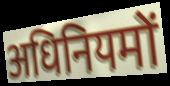
अधिनियमों